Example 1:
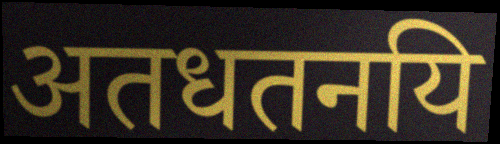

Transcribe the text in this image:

अतधतनयि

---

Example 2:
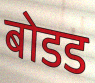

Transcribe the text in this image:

बोडड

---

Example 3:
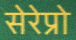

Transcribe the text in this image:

सेरेप्रो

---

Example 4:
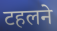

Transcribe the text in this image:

टहलने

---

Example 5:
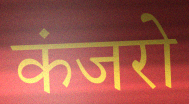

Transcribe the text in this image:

कंजरो